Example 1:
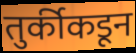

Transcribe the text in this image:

तुर्कीकडून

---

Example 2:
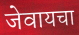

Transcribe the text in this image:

जेवायचा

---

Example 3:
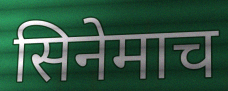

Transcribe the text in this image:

सिनेमाच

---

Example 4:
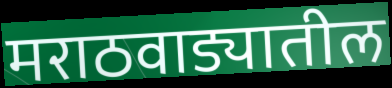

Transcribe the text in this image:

मराठवाड्यातील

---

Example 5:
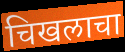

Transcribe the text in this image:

चिखलाचा